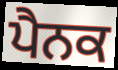
ਪੈਨਕ